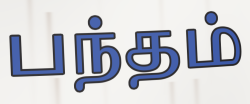
பந்தம்